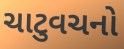
ચાટુવચનો